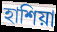
হাশিয়া